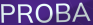
PROBA